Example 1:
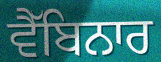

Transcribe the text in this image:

ਵੈੱਬਿਨਾਰ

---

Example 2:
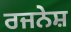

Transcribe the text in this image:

ਰਜਨੇਸ਼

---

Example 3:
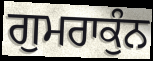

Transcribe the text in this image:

ਗੁਮਰਾਕੁੰਨ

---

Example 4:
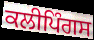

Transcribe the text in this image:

ਕਲੀਪਿੰਗਸ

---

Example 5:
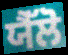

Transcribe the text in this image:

ਯੈੱਲੋ